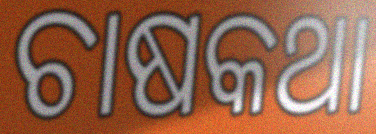
ଚାଷକଥା